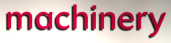
machinery